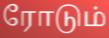
ரோடும்